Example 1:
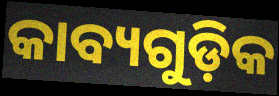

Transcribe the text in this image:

କାବ୍ୟଗୁଡ଼ିକ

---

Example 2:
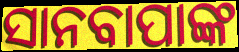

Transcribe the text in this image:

ସାନବାପାଙ୍କ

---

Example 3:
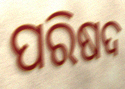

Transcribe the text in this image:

ପରିଷଦ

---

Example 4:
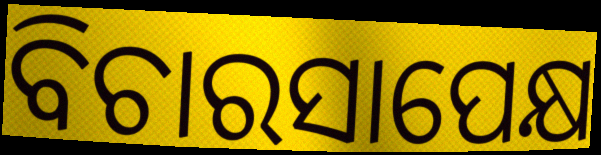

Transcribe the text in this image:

ବିଚାରସାପେକ୍ଷ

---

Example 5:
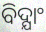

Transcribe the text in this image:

ବିଦ୍ଯାଂ